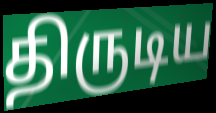
திருடிய